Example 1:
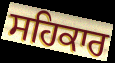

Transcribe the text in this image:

ਸਹਿਕਾਰ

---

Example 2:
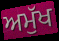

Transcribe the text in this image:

ਅਮੁੱਖ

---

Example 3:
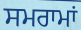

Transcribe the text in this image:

ਸਮਰਾਮਾਂ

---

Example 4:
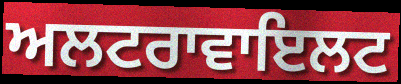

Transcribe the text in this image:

ਅਲਟਰਾਵਾਇਲਟ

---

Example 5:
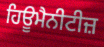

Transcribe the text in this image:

ਹਿਊਮੈਨੀਟੀਜ਼